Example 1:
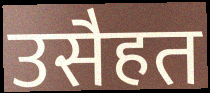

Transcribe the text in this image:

उसैहत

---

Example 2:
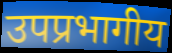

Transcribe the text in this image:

उपप्रभागीय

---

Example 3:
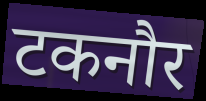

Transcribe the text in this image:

टकनौर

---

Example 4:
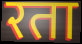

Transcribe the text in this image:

रता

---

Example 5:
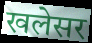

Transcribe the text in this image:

खलेसर